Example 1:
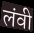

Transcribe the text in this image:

लंवी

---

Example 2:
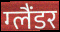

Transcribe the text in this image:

ग्लैंडर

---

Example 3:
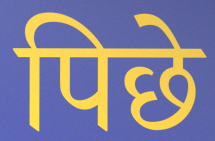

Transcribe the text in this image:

पिछे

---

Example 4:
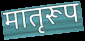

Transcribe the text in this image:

मातृरूप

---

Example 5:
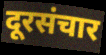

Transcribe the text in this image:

दूरसंचार